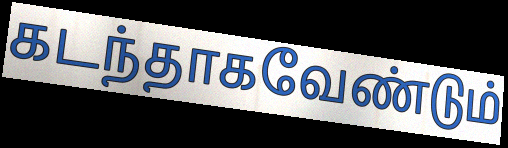
கடந்தாகவேண்டும்